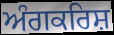
ਅੰਗਕਰਿਸ਼